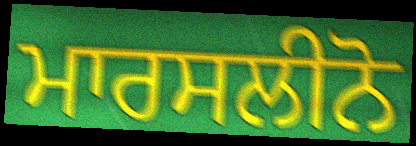
ਮਾਰਸਲੀਨੋ